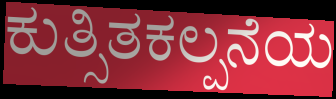
ಕುತ್ಸಿತಕಲ್ಪನೆಯ